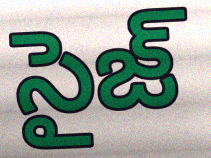
సైజ్